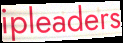
ipleaders